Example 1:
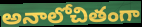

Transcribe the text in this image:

అనాలోచితంగా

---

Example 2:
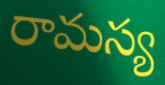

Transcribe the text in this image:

రామస్య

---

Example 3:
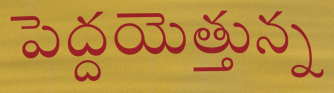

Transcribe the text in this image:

పెద్దయెత్తున్న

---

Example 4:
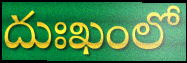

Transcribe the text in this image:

దుఃఖంలో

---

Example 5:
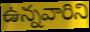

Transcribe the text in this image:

ఉన్నవారిని